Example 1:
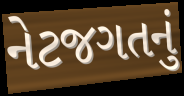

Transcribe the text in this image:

નેટજગતનું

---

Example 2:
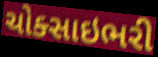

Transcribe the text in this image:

ચોક્સાઇભરી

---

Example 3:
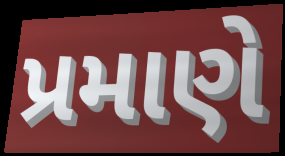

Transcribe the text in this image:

પ્રમાણે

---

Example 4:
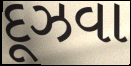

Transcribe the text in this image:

દૂઝવા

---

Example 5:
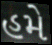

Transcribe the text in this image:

હમે